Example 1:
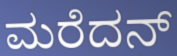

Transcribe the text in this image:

ಮರೆದನ್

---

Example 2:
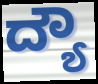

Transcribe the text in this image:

ದ್ಯೌ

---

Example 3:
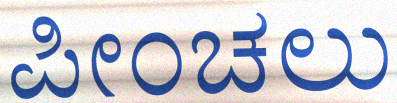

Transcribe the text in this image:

ಪೀಂಚಲು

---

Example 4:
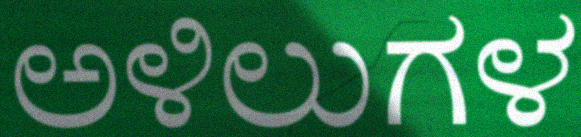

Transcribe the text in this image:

ಅಳಿಲುಗಳ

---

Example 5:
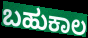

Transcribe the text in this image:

ಬಹುಕಾಲ